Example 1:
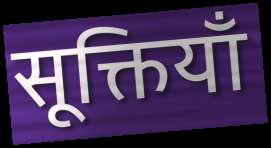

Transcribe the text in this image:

सूक्तियाँ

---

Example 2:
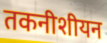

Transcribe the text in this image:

तकनीशीयन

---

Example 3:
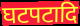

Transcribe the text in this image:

घटपटादि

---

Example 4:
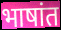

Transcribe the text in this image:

भाषांत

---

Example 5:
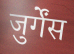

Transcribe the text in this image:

जुर्गेंस